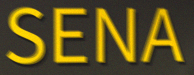
SENA